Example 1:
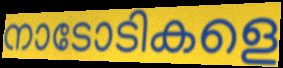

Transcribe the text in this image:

നാടോടികളെ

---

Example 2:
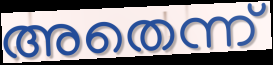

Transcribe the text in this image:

അതെന്ന്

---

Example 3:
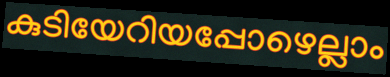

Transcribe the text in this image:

കുടിയേറിയപ്പോഴെല്ലാം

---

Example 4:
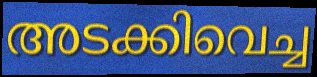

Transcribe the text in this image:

അടക്കിവെച്ച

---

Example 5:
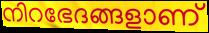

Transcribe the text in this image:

നിറഭേദങ്ങളാണ്